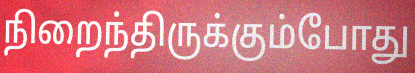
நிறைந்திருக்கும்போது